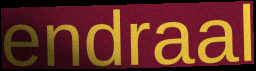
endraal